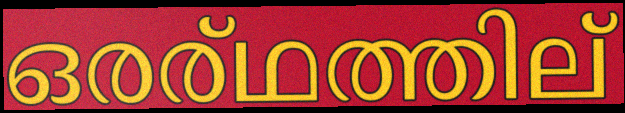
ഒരര്ഥത്തില്